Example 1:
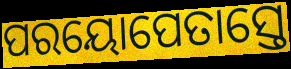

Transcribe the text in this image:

ପରୟୋପେତାସ୍ତେ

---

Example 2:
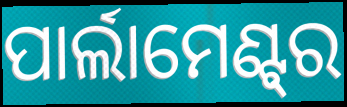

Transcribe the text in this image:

ପାର୍ଲାମେଣ୍ଟ୍‌ର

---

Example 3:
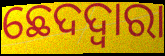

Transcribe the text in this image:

ଛେଦଦ୍ୱାରା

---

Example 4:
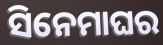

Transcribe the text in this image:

ସିନେମାଘର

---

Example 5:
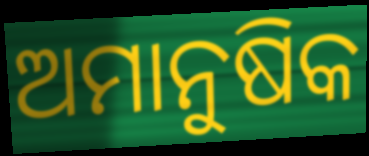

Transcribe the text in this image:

ଅମାନୁଷିକ